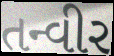
તન્વીર